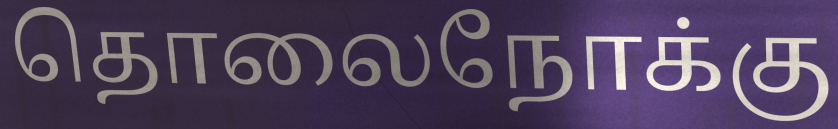
தொலைநோக்கு